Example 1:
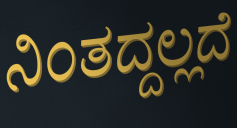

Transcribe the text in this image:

ನಿಂತದ್ದಲ್ಲದೆ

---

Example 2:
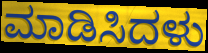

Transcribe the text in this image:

ಮಾಡಿಸಿದಳು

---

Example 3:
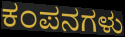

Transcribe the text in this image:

ಕಂಪನಗಳು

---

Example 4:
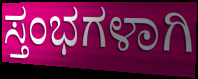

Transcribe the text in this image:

ಸ್ತಂಭಗಳಾಗಿ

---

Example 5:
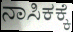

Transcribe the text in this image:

ನಾಸಿಕಕ್ಕೆ